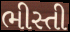
ભીસ્તી